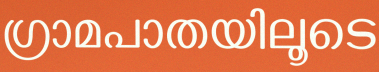
ഗ്രാമപാതയിലൂടെ